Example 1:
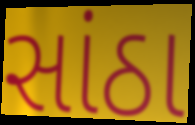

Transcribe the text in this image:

સાંઠા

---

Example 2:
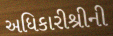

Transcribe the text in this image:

અધિકારીશ્રીની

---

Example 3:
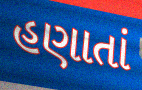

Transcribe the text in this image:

હણાતાં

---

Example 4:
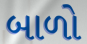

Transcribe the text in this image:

બાળો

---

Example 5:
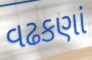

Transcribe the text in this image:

વઢકણાં